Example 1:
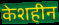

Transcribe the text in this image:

केशहीन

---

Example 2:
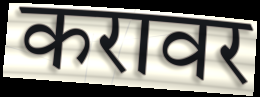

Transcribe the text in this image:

करावर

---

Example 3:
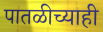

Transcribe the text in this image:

पातळीच्याही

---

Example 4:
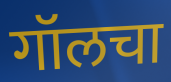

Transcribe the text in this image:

गॉलचा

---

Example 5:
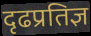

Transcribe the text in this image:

दृढप्रतिज्ञ